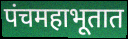
पंचमहाभूतात